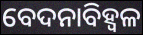
ବେଦନାବିହ୍ୱଳ